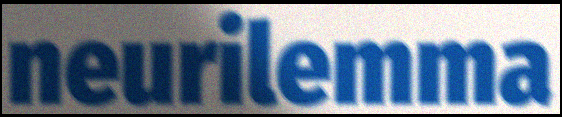
neurilemma